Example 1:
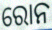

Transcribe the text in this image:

ରୋନ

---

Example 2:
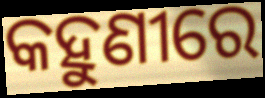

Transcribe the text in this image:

କହୁଣୀରେ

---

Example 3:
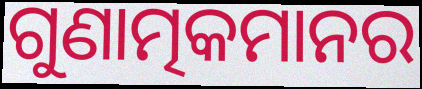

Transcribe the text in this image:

ଗୁଣାତ୍ମକମାନର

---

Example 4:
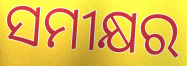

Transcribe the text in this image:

ସମୀକ୍ଷର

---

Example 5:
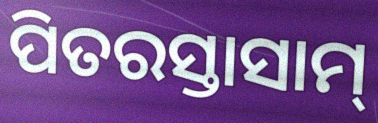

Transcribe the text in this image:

ପିତରସ୍ତାସାମ୍